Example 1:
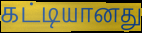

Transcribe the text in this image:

கட்டியானது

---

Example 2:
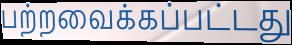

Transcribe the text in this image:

பற்றவைக்கப்பட்டது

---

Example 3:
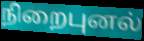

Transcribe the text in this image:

நிறைபுனல்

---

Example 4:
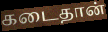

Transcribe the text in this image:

கடைதான்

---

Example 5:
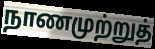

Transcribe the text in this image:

நாணமுற்றுத்